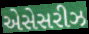
એસેસરીઝ